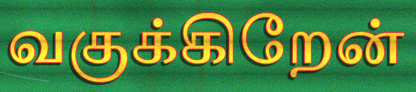
வகுக்கிறேன்